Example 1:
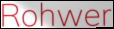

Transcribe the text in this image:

Rohwer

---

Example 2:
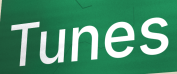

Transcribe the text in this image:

Tunes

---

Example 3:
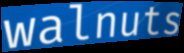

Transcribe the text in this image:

walnuts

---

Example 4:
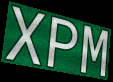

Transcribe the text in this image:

XPM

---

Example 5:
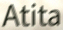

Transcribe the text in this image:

Atita